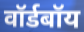
वॉर्डबॉय